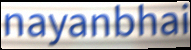
nayanbhai